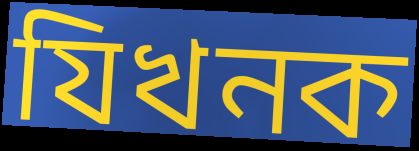
যিখনক